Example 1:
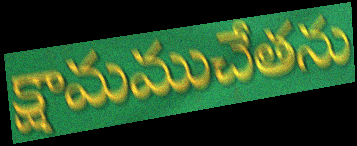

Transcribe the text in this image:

క్షామముచేతను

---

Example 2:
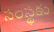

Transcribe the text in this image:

సంస్థకు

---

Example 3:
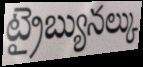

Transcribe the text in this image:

ట్రైబ్యునల్కు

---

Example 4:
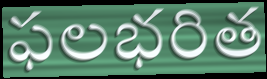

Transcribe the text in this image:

ఫలభరిత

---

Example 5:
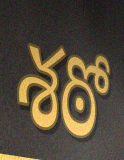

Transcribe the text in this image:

శఠో